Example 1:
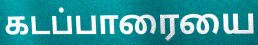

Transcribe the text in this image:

கடப்பாரையை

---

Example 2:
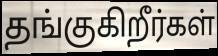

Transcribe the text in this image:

தங்குகிறீர்கள்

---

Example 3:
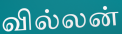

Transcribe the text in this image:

வில்லன்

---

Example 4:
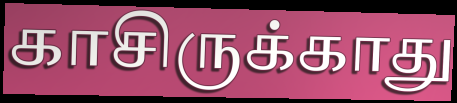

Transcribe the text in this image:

காசிருக்காது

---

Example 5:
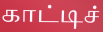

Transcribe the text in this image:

காட்டிச்